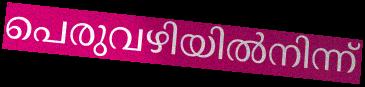
പെരുവഴിയിൽനിന്ന്